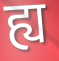
ह्य